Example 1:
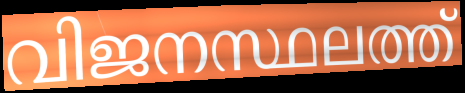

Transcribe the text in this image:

വിജനസ്ഥലത്ത്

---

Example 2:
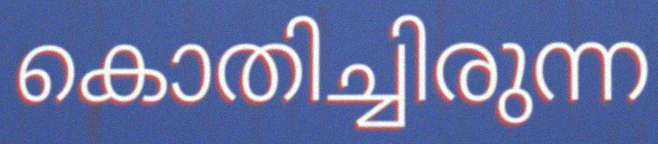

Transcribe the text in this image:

കൊതിച്ചിരുന്ന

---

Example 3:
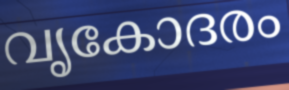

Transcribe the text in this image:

വൃകോദരം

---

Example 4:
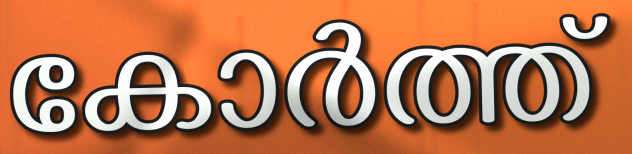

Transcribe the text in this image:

കോർത്ത്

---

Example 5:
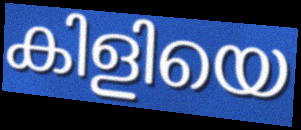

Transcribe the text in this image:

കിളിയെ